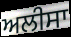
ਅਲੀਸਾ